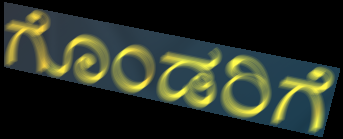
ಗೊಂಡರಿಗೆ